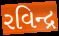
રવિન્દ્ર